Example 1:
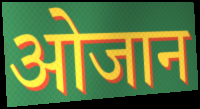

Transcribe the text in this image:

ओजान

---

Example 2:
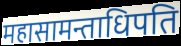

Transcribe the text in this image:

महासामन्ताधिपति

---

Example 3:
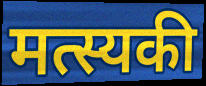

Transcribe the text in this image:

मत्स्यकी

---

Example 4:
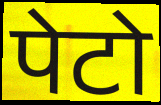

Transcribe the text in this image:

पेटो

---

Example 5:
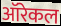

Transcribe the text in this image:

ऑरेकल